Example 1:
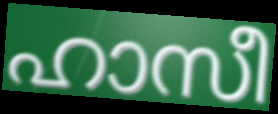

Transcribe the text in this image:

ഹാസീ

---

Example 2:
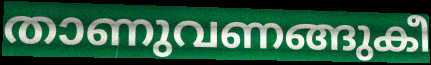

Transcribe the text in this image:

താണുവണങ്ങുകീ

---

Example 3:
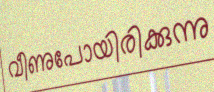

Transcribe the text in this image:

വീണുപോയിരിക്കുന്നു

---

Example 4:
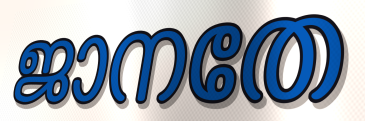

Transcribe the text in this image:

ജാനതേ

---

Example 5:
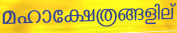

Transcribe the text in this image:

മഹാക്ഷേത്രങ്ങളില്